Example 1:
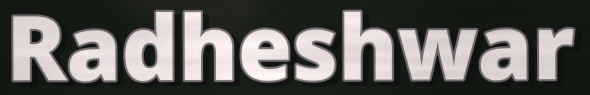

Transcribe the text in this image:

Radheshwar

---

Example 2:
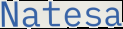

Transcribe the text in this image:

Natesa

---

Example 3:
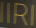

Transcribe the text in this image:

IIRI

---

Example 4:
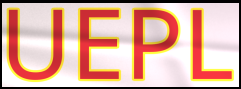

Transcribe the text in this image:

UEPL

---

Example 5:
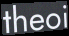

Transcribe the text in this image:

theoi